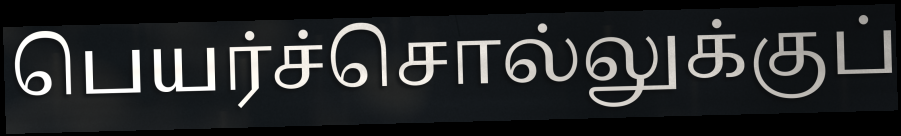
பெயர்ச்சொல்லுக்குப்